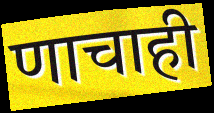
णाचाही